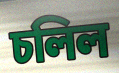
চলিল